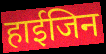
हाईजिन